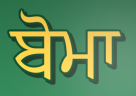
ਬੋਮਾ